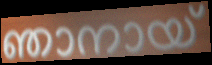
ഞാനായ്